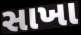
સાખા